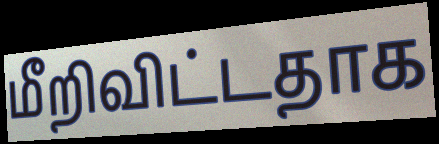
மீறிவிட்டதாக